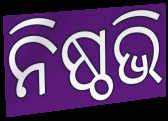
ନିଷ୍ଠଭି